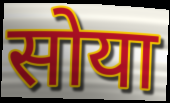
सोया